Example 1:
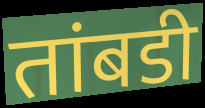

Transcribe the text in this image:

तांबडी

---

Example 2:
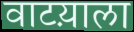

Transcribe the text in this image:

वाटय़ाला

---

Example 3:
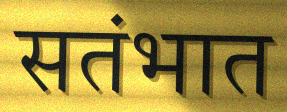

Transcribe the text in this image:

सतंभात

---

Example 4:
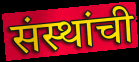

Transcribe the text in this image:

संस्थांची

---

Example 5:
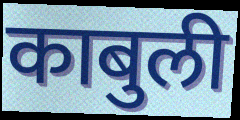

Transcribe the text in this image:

काबुली